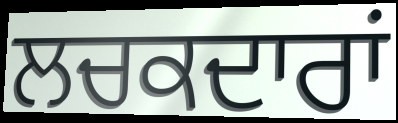
ਲਚਕਦਾਰਾਂ